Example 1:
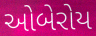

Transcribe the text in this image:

ઓબેરોય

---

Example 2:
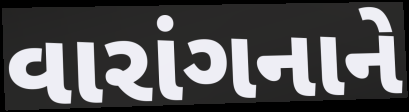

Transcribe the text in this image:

વારાંગનાને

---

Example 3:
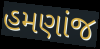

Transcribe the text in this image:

હમણાંજ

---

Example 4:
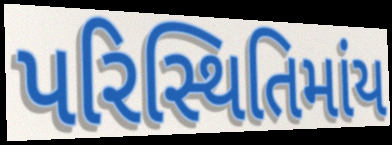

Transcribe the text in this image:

પરિસ્થિતિમાંય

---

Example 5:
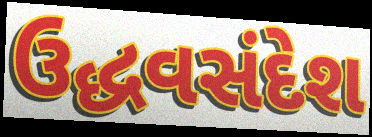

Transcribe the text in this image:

ઉદ્ધવસંદેશ